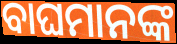
ବାଘମାନଙ୍କ